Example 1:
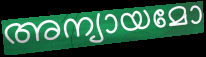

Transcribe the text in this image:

അന്യായമോ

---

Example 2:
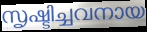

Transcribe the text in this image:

സൃഷ്ടിച്ചവനായ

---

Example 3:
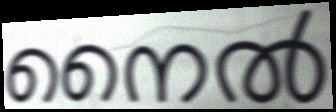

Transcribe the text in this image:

നൈൽ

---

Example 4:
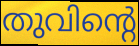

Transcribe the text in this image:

തുവിന്റെ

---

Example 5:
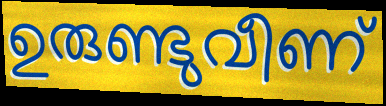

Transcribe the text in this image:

ഉരുണ്ടുവീണ്